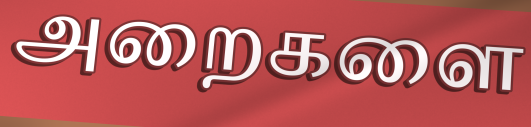
அறைகளை